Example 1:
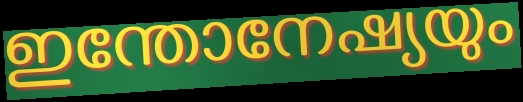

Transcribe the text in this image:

ഇന്തോനേഷ്യയും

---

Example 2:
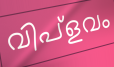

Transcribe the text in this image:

വിപ്ളവം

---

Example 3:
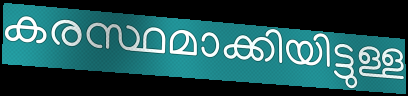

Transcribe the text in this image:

കരസ്ഥമാക്കിയിട്ടുള്ള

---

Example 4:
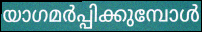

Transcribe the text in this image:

യാഗമർപ്പിക്കുമ്പോൾ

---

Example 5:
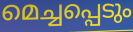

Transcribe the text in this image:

മെച്ചപ്പെടും